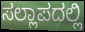
ಸಲ್ಲಾಪದಲ್ಲಿ